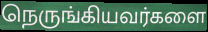
நெருங்கியவர்களை